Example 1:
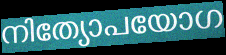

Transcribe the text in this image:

നിത്യോപയോഗ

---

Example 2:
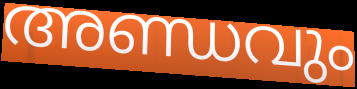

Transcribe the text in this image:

അണ്ഡവും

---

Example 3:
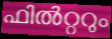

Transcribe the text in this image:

ഫിൽറ്ററും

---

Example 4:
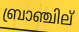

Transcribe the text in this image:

ബ്രാഞ്ചില്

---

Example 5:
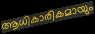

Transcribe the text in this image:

ആധികാരികമായും